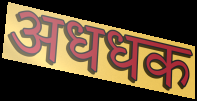
अधधक